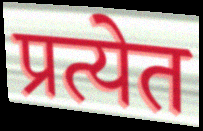
प्रत्येत